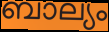
ബാല്യം